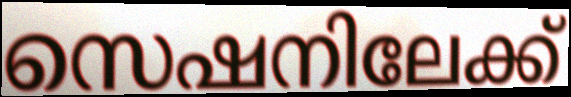
സെഷനിലേക്ക്